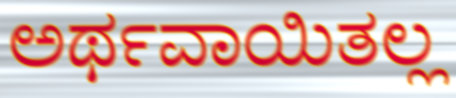
ಅರ್ಥವಾಯಿತಲ್ಲ